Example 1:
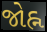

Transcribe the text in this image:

જોહ્ન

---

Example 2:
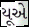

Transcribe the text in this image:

યૂએ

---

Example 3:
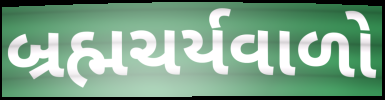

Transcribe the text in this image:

બ્રહ્મચર્યવાળો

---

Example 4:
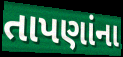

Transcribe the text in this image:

તાપણાંના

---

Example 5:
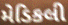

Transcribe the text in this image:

મેડિકલી